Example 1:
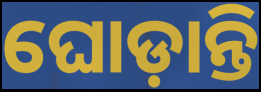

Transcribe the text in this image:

ଘୋଡ଼ାନ୍ତି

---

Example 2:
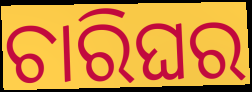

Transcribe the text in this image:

ଚାରିଘର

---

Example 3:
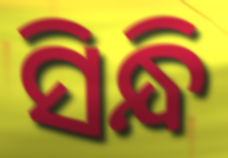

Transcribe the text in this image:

ସିନ୍ଧି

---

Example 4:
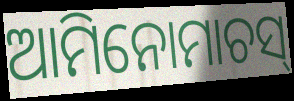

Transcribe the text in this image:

ଆମିନୋମାଚସ୍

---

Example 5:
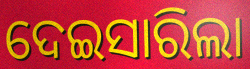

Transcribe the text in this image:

ଦେଇସାରିଲା